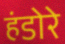
हंडोरे